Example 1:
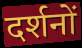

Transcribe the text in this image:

दर्शनों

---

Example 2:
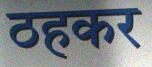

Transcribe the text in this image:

ठहकर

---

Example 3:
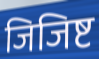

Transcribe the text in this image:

जिजिष्ट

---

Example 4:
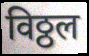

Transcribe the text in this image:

विठ्ठल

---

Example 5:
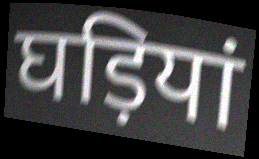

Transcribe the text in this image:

घड़ियां